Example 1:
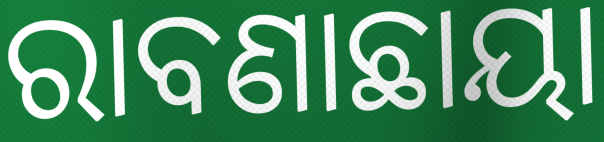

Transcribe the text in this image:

ରାବଣାଛାୟା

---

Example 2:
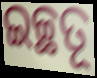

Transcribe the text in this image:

ଇଚ୍ଛତୂ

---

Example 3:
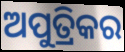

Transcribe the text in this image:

ଅପୁତ୍ରିକର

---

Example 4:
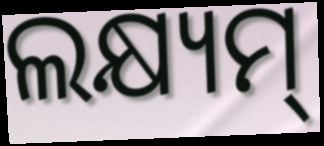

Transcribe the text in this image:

ଲକ୍ଷ୍ୟମ୍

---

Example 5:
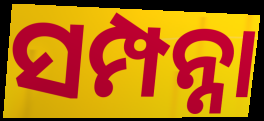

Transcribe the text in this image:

ସମ୍ପନ୍ନା